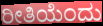
ರೀತಿಯೆಂದು